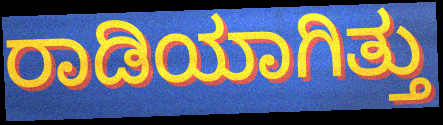
ರಾಡಿಯಾಗಿತ್ತು